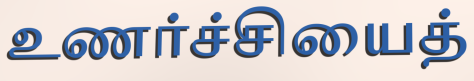
உணர்ச்சியைத்